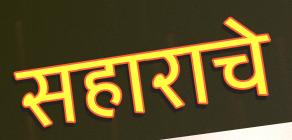
सहाराचे